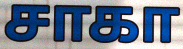
சாகா